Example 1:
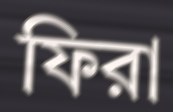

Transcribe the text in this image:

ফিরা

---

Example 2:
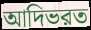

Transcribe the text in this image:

আদিভরত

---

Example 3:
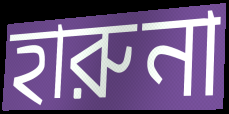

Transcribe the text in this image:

হারুনা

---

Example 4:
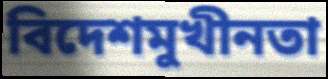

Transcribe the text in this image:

বিদেশমুখীনতা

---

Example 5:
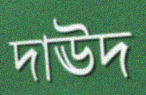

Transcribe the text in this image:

দাঊদ